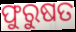
ଫୁରୁଷତ